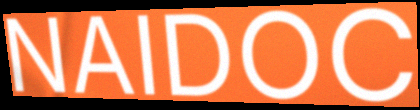
NAIDOC